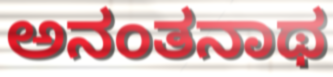
ಅನಂತನಾಥ